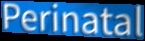
Perinatal